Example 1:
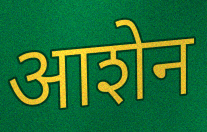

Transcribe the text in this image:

आशेन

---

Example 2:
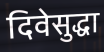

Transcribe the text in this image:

दिवेसुद्धा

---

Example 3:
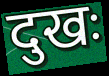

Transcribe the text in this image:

दुखः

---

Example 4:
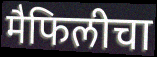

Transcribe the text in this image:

मैफिलीचा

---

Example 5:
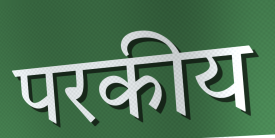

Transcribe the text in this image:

परकीय